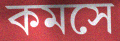
কমসে